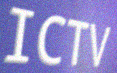
ICTV